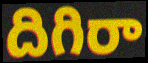
దిగిరా